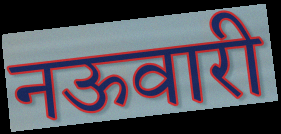
नऊवारी